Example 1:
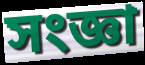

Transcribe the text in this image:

সংজ্ঞা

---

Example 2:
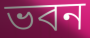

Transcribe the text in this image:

ভবন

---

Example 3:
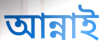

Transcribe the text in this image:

আন্নাই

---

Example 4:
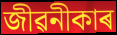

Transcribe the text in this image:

জীৱনীকাৰ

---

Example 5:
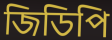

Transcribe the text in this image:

জিডিপি